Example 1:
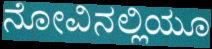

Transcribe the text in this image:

ನೋವಿನಲ್ಲಿಯೂ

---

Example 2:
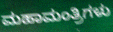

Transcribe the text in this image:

ಮಹಾಮಂತ್ರಿಗಳು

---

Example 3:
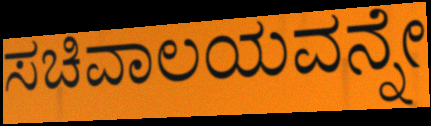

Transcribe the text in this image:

ಸಚಿವಾಲಯವನ್ನೇ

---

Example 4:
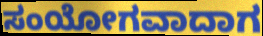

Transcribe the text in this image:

ಸಂಯೋಗವಾದಾಗ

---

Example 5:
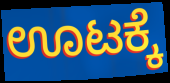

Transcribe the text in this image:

ಊಟಕ್ಕೆ